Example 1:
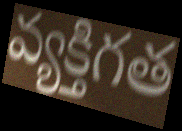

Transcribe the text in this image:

వ్యక్తిగత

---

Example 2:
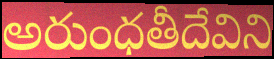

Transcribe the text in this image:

అరుంధతీదేవిని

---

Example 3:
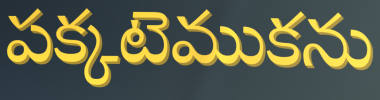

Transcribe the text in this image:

పక్కటెముకను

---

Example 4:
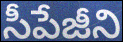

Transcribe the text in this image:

సీపేజీని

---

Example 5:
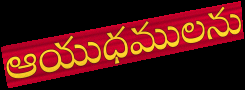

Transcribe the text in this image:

ఆయుధములను